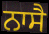
ਨਾਸੈ